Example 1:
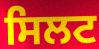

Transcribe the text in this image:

ਸਿਲਟ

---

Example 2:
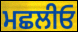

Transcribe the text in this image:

ਮਛਲੀਓ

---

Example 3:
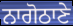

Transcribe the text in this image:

ਨਾਗੋਠਾਣੇ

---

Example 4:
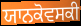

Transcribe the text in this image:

ਯਾਨਕੋਵਸਕੀ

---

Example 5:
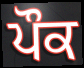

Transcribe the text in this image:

ਪੌਕ